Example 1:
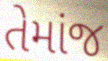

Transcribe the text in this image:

તેમાંજ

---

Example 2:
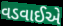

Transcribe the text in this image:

વડવાઈએ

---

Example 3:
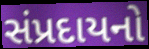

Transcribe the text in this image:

સંપ્રદાયનો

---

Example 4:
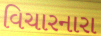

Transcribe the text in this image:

વિચારનારા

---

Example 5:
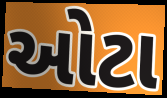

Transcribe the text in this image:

ઓટા